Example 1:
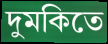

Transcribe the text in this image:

দুমকিতে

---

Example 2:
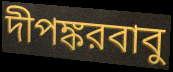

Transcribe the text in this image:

দীপঙ্করবাবু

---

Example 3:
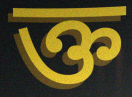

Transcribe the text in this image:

ক্ত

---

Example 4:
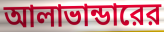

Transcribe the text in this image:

আলাভান্ডারের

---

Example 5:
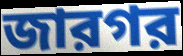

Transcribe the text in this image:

জারগর